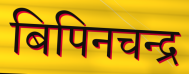
बिपिनचन्द्र